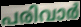
പരിവാർ